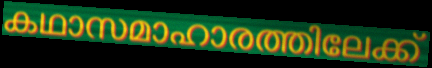
കഥാസമാഹാരത്തിലേക്ക്